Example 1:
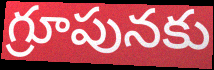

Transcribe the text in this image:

గ్రూపునకు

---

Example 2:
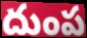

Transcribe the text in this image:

దుంప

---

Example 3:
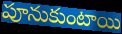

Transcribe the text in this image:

పూనుకుంటాయి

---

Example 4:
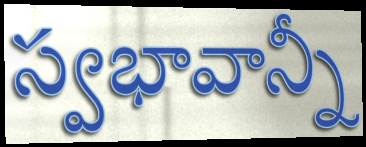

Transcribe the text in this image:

స్వభావాన్నీ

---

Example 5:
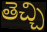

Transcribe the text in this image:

తెచ్చి